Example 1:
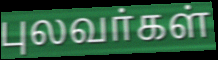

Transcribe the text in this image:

புலவர்கள்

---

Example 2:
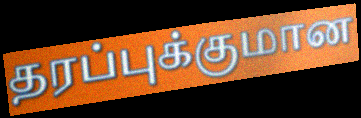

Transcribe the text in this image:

தரப்புக்குமான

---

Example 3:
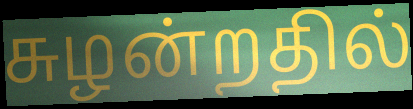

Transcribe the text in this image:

சுழன்றதில்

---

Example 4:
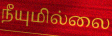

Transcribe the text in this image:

நீயுமில்லை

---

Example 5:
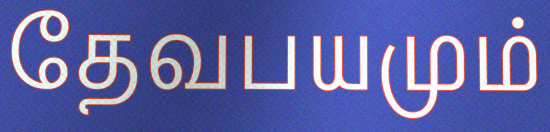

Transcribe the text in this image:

தேவபயமும்